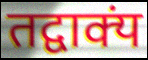
तद्वाक्यं